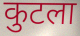
कुटला